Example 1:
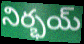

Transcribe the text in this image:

నిర్భయ్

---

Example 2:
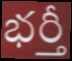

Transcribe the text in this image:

భర్తీ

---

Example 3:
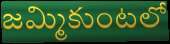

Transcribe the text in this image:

జమ్మికుంటలో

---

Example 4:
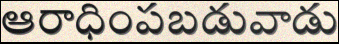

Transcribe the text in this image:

ఆరాధింపబడువాడు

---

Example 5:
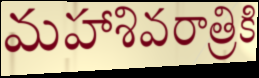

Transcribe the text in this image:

మహాశివరాత్రికి